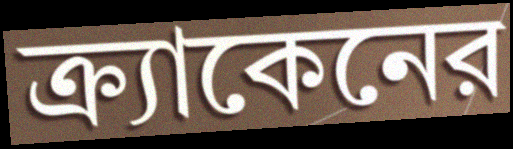
ক্র্যাকেনের